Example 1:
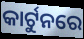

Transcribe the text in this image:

କାର୍ଟୁନରେ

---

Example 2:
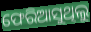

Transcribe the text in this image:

ଫେରିଆସୁଥିଲୁ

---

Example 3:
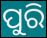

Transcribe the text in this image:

ପୁରି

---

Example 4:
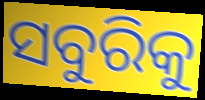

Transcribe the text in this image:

ସବୁରିକୁ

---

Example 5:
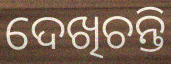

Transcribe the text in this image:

ଦେଖିଚନ୍ତି